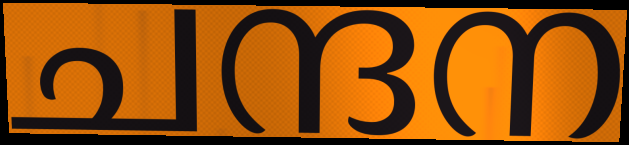
ചന്ദന